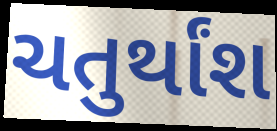
ચતુર્થાંશ